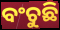
ବଂଚୁଛି